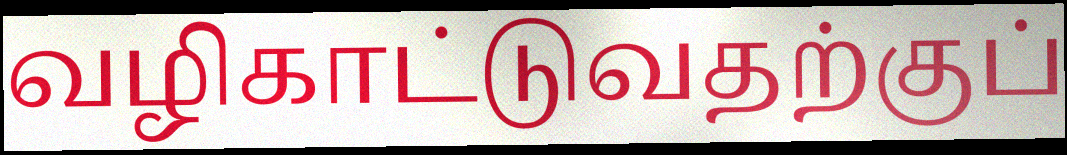
வழிகாட்டுவதற்குப்